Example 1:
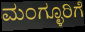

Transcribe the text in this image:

ಮಂಗ್ಳೂರಿಗೆ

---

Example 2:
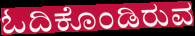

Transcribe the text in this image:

ಓದಿಕೊಂಡಿರುವ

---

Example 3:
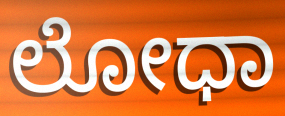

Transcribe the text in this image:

ಲೋಧಾ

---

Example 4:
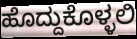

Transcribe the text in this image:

ಹೊದ್ದುಕೊಳ್ಳಲಿ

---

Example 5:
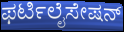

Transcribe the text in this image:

ಫರ್ಟಿಲೈಸೇಷನ್